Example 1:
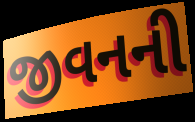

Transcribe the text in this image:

જીવનની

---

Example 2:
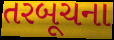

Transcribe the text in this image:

તરબૂચના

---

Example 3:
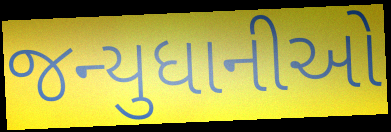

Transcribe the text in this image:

જન્યુધાનીઓ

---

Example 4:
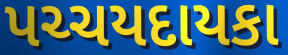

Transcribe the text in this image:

પચ્ચયદાયકા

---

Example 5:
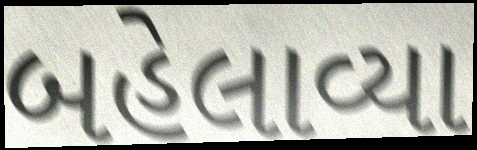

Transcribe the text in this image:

બહેલાવ્યા